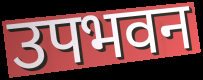
उपभवन